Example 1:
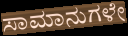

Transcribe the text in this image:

ಸಾಮಾನುಗಳೇ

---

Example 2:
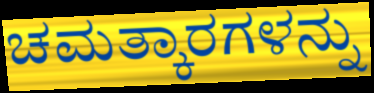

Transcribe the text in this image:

ಚಮತ್ಕಾರಗಳನ್ನು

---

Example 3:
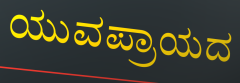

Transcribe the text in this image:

ಯುವಪ್ರಾಯದ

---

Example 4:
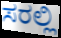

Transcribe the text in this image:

ಸರಲ್ಲಿ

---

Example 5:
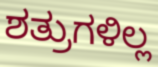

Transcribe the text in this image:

ಶತ್ರುಗಳಿಲ್ಲ